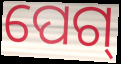
ପେଗ୍